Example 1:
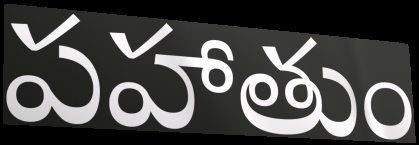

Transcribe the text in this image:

పహాతుం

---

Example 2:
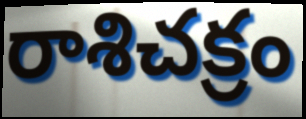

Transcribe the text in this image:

రాశిచక్రం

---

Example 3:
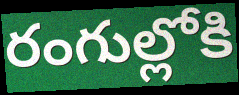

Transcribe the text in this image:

రంగుల్లోకి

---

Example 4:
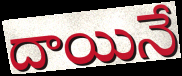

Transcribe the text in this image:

దాయినే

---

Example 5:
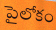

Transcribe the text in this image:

పైలోకం